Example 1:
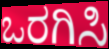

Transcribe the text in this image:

ಒರಗಿಸಿ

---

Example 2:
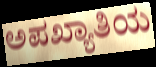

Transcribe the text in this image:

ಅಪಖ್ಯಾತಿಯ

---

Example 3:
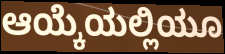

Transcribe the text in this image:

ಆಯ್ಕೆಯಲ್ಲಿಯೂ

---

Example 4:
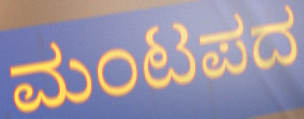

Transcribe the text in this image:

ಮಂಟಪದ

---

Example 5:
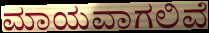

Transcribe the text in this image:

ಮಾಯವಾಗಲಿವೆ